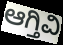
ಆಗ್ತಿವಿ